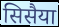
सिसैया